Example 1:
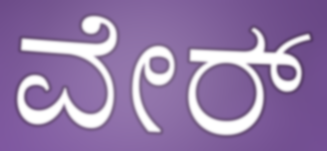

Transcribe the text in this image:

ವೇರ್‍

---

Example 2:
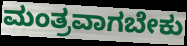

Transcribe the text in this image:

ಮಂತ್ರವಾಗಬೇಕು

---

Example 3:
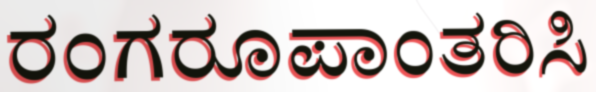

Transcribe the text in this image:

ರಂಗರೂಪಾಂತರಿಸಿ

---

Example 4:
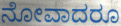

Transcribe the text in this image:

ನೋವಾದರೂ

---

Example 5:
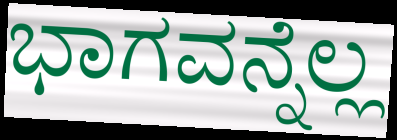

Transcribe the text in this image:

ಭಾಗವನ್ನೆಲ್ಲ